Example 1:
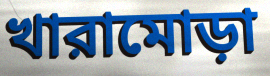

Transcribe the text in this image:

খারামোড়া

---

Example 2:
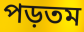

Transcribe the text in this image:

পড়তম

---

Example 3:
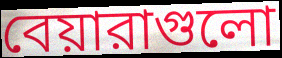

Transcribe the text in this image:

বেয়ারাগুলো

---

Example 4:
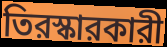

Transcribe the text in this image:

তিরস্কারকারী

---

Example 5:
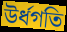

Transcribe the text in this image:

উর্ধগতি